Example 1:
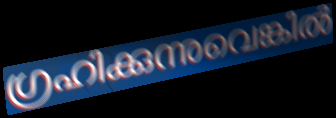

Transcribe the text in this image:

ഗ്രഹിക്കുന്നുവെങ്കിൽ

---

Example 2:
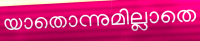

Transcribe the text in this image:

യാതൊന്നുമില്ലാതെ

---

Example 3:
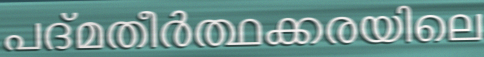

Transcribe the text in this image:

പദ്മതീർത്ഥക്കരയിലെ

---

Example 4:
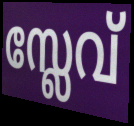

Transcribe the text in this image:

സ്ലേവ്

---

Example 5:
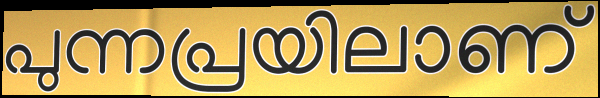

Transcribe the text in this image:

പുന്നപ്രയിലാണ്